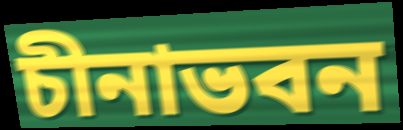
চীনাভবন